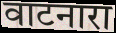
वाटनारा